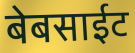
बेबसाईट